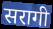
सरागी